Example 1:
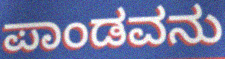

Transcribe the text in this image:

ಪಾಂಡವನು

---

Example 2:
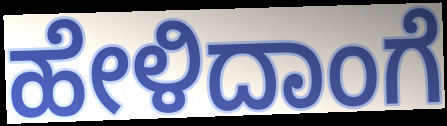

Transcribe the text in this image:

ಹೇಳಿದಾಂಗೆ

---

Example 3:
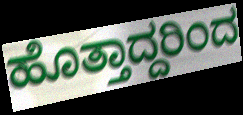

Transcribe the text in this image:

ಹೊತ್ತಾದ್ದರಿಂದ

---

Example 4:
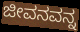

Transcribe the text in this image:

ಜೀವನವನ್ನ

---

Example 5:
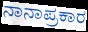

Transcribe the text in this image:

ನಾನಾಪ್ರಕಾರ